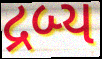
દ્રબ્ય